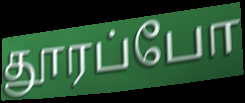
தூரப்போ